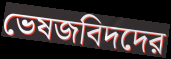
ভেষজবিদদের